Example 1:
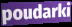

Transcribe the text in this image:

poudarki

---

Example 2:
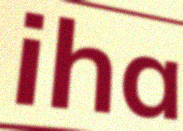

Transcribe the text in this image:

iha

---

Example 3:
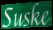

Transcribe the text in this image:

Suske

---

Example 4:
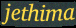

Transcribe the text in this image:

jethima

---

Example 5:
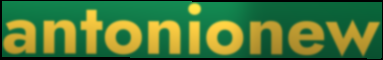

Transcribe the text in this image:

antonionew